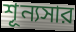
শূন্যসার